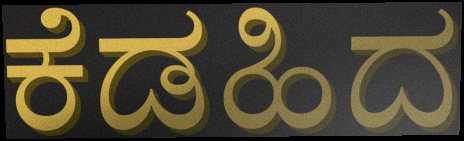
ಕೆಡಹಿದ